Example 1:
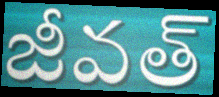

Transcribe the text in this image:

జీవత్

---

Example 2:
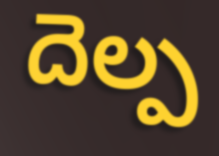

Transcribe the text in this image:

దెల్ప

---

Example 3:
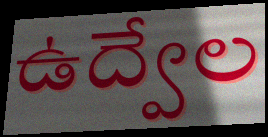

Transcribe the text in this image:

ఉద్వేల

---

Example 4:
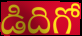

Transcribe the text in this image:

డిదిగో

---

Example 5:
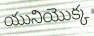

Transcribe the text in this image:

యునియొక్క